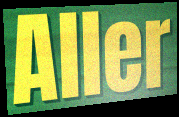
Aller